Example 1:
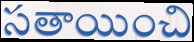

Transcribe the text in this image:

సతాయించి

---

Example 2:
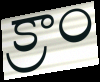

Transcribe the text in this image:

క్రాం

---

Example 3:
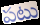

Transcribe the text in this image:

పటు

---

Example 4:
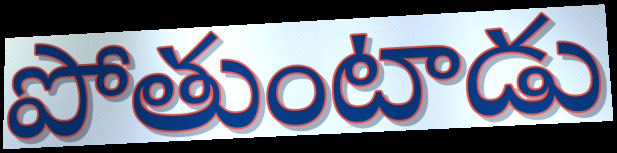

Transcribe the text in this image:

పోతుంటాడు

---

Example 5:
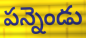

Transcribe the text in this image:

పన్నెండు